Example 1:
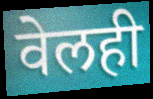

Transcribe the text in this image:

वेलही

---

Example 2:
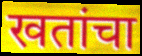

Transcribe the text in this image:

खतांचा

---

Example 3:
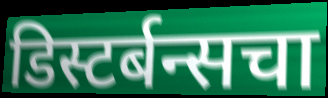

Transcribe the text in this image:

डिस्टर्बन्सचा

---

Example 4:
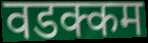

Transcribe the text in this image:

वडक्कम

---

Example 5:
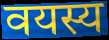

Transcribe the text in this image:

वयस्य